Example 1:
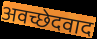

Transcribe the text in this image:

अवच्छेदवाद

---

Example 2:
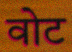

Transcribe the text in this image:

वोट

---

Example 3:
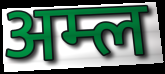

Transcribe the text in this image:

अम्ल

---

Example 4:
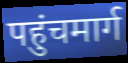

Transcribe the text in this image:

पहुंचमार्ग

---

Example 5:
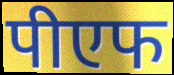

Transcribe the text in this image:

पीएफ